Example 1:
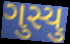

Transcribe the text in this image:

ગુસ્યુ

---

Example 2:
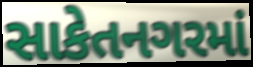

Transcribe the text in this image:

સાકેતનગરમાં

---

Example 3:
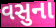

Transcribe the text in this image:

વસુના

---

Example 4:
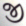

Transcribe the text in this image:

જી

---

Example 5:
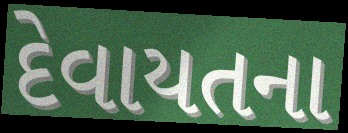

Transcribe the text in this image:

દેવાયતના